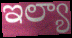
ఇల్యా